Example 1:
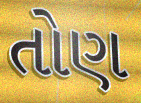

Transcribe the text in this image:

તોણ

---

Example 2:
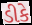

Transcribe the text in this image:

ડીકે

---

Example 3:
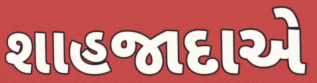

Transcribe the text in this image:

શાહજાદાએ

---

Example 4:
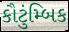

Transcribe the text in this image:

કૌટુંમ્બિક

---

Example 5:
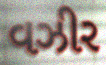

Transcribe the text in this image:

વઝીર